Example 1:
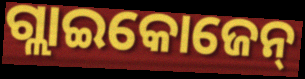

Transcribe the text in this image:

ଗ୍ଲାଇକୋଜେନ୍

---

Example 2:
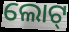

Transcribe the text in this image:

ଲୋଟ୍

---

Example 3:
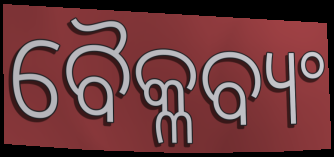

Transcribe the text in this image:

ବୈକ୍ଳବ୍ୟଂ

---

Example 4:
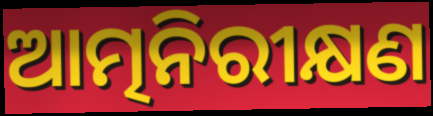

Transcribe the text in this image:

ଆତ୍ମନିରୀକ୍ଷଣ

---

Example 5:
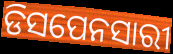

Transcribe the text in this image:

ଡିସପେନସାରୀ